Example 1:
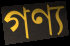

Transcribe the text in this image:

গণ্য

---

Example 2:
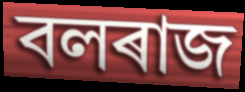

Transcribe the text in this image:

বলৰাজ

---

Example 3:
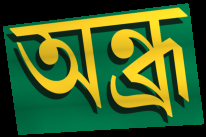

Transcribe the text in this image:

অন্ধ্ৰ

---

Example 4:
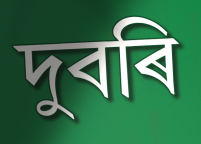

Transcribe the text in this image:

দুবৰি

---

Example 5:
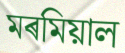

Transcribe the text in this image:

মৰমিয়াল